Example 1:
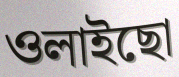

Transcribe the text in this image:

ওলাইছো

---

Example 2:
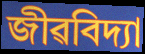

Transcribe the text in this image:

জীৱবিদ্যা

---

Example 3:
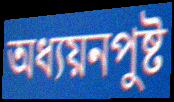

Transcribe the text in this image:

অধ্যয়নপুষ্ট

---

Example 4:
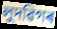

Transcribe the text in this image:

লুদৱিগৰ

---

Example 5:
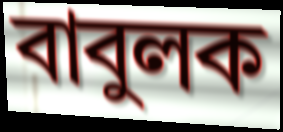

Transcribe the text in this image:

বাবুলক